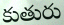
కుతురు